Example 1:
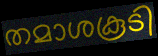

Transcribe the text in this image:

തമാശകൂടി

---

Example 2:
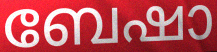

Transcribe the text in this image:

ബേഷാ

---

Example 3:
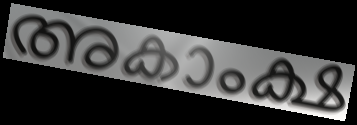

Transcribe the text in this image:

അകാംക്ഷ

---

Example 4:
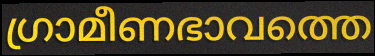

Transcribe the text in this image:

ഗ്രാമീണഭാവത്തെ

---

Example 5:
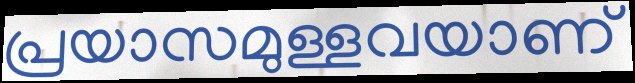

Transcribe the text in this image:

പ്രയാസമുള്ളവയാണ്